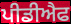
ਪੀਡੀਐਫ